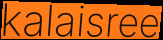
kalaisree